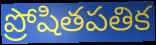
ప్రోషితపతిక